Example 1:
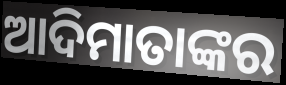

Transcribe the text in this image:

ଆଦିମାତାଙ୍କର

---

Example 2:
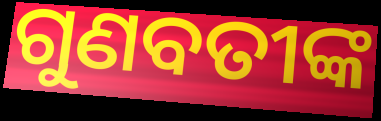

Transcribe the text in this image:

ଗୁଣବତୀଙ୍କ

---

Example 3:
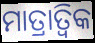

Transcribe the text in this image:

ମାତ୍ରାତ୍ଵିକ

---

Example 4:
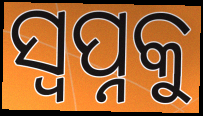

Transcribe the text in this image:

ସ୍ଵପ୍ନକୁ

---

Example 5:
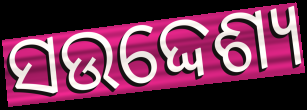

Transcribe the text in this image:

ସଉଦ୍ଦେଶ୍ୟ